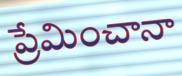
ప్రేమించానా